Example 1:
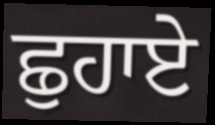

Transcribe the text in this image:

ਛੁਹਾਏ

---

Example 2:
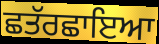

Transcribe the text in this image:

ਛਤੱਰਛਾਇਆ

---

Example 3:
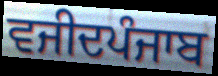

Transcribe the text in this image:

ਵਜੀਦਪੰਜਾਬ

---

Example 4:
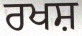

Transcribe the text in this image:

ਰਖਸ਼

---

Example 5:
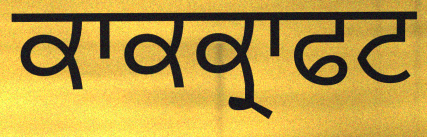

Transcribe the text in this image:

ਕਾਕਕ੍ਰਾਫਟ